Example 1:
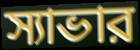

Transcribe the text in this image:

স্যাভার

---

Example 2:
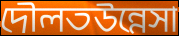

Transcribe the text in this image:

দৌলতউন্নেসা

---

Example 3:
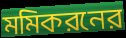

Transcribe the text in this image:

মমিকরনের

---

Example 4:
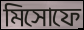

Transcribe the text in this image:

মিসোফে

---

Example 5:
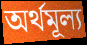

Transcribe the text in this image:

অর্থমূল্য